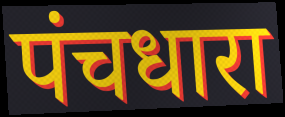
पंचधारा